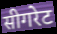
सीगरेट